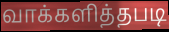
வாக்களித்தபடி